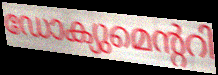
ഡോക്യുമെന്ററി